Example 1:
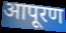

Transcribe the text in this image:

आपूरण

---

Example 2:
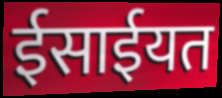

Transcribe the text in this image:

ईसाईयत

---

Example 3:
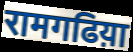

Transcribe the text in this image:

रामगढिय़ा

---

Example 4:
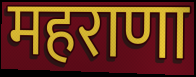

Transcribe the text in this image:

महराणा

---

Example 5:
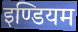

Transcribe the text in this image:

इण्डियम